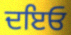
ਦਇਓ